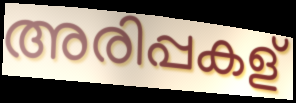
അരിപ്പകള്